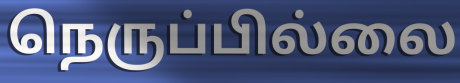
நெருப்பில்லை